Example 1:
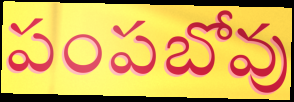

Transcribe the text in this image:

పంపబోవు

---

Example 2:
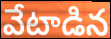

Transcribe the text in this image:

వేటాడిన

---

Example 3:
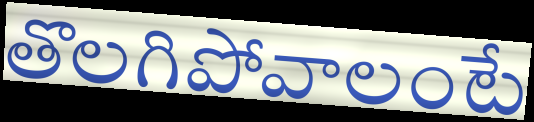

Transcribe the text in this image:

తొలగిపోవాలంటే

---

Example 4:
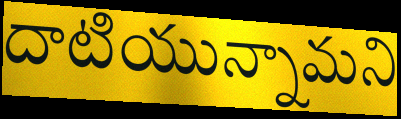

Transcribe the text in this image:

దాటియున్నామని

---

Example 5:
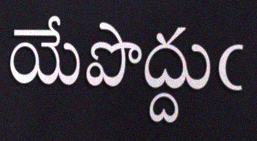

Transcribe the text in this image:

యేపొద్దుఁ